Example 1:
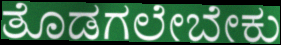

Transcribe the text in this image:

ತೊಡಗಲೇಬೇಕು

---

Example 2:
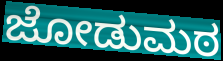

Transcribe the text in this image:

ಜೋಡುಮಠ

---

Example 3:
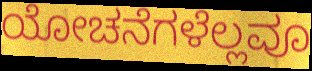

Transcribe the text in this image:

ಯೋಚನೆಗಳೆಲ್ಲವೂ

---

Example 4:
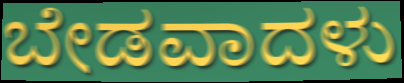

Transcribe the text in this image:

ಬೇಡವಾದಳು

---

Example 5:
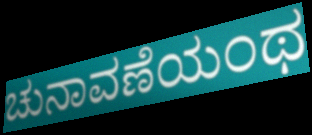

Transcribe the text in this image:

ಚುನಾವಣೆಯಂಥ